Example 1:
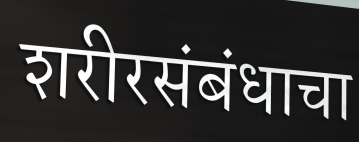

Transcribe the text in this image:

शरीरसंबंधाचा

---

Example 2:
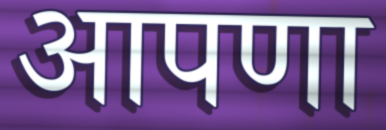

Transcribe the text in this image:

आपणा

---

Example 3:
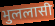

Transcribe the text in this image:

भुललासी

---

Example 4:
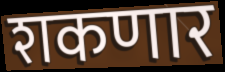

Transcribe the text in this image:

शकणार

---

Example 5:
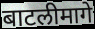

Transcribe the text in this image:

बाटलीमागे